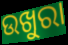
ଉଖୁରା